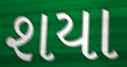
શયા